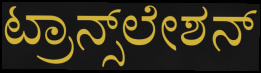
ಟ್ರಾನ್ಸ್‌ಲೇಶನ್